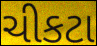
ચીકટા